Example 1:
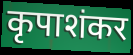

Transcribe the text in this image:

कृपाशंकर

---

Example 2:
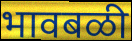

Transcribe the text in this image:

भावबळी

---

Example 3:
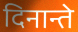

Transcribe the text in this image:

दिनान्ते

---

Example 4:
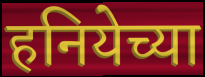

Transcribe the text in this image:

हनियेच्या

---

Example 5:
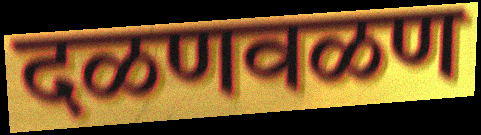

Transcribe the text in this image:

दळणवळण